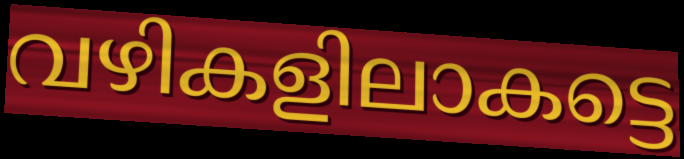
വഴികളിലാകട്ടെ